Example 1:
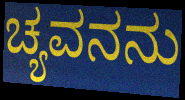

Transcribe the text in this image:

ಚ್ಯವನನು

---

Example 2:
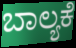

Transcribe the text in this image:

ಬಾಲ್ಯಕೆ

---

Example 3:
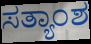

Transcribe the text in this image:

ಸತ್ಯಾಂಶ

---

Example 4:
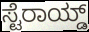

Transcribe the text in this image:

ಸ್ಟೆರಾಯ್ಡ್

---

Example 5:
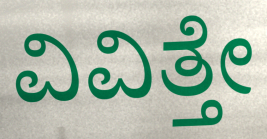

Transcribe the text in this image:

ವಿವಿತ್ತೇ